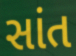
સાંત